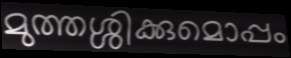
മുത്തശ്ശിക്കുമൊപ്പം